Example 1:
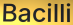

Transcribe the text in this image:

Bacilli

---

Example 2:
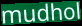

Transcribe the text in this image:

mudhol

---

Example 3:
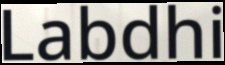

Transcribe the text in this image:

Labdhi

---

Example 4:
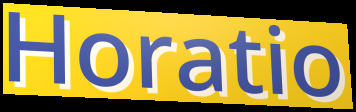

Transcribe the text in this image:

Horatio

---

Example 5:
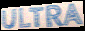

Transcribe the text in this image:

ULTRA